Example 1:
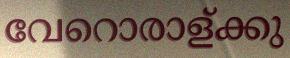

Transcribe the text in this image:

വേറൊരാള്ക്കു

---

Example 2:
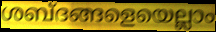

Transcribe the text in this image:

ശബ്ദങ്ങളെയെല്ലാം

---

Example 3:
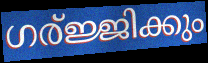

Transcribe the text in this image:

ഗര്ജ്ജിക്കും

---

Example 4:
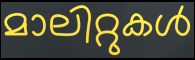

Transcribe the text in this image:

മാലിറ്റുകൾ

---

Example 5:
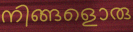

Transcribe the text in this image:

നിങ്ങളൊരു